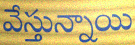
వేస్తున్నాయి